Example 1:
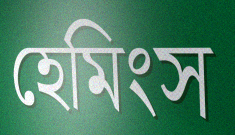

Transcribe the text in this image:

হেমিংস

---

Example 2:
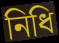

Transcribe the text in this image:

নিধি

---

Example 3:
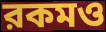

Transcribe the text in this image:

রকমও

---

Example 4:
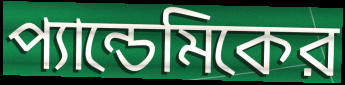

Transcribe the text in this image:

প্যান্ডেমিকের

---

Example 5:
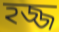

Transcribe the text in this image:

হজ্জ